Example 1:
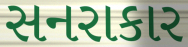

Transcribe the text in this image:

સનરાકાર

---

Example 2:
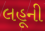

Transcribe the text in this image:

લહૂની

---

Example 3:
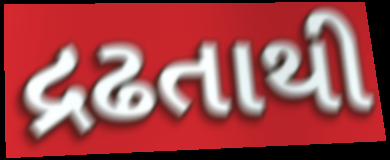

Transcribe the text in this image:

દ્રઢતાથી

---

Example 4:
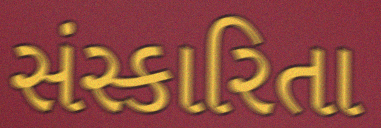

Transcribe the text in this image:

સંસ્કારિતા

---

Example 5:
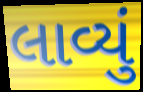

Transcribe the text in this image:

લાવ્યું